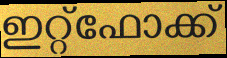
ഇറ്റ്ഫോക്ക്